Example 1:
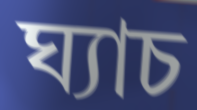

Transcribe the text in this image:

ঘ্যাচ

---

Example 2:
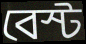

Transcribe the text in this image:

বেস্ট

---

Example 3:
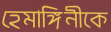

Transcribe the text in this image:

হেমাঙ্গিনীকে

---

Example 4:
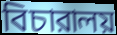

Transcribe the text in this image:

বিচারালয়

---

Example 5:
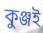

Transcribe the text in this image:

কুঞ্জই